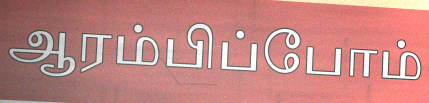
ஆரம்பிப்போம்